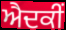
ਐਦਕੀਂ